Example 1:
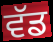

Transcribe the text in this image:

ਵੱਡ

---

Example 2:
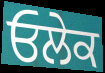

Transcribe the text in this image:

ਓਲੇਕ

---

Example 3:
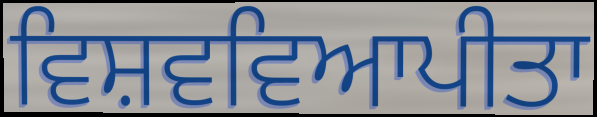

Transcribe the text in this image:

ਵਿਸ਼ਵਵਿਆਪੀਤਾ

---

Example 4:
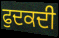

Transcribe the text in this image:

ਫੁਦਕਦੀ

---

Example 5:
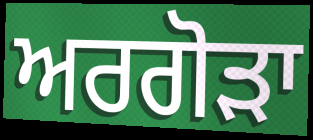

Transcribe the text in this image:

ਅਰਗੋੜਾ